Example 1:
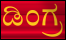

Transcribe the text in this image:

ಡಿಂಗ್ರ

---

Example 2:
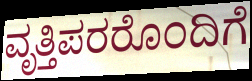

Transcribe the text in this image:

ವೃತ್ತಿಪರರೊಂದಿಗೆ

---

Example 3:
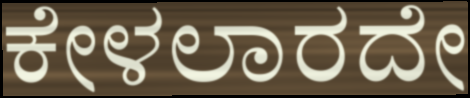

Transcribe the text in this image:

ಕೇಳಲಾರದೇ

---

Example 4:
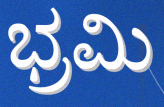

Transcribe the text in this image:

ಭ್ರಮಿ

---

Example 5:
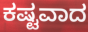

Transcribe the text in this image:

ಕಷ್ಟವಾದ